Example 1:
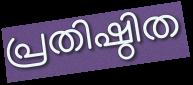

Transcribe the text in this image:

പ്രതിഷ്ഠിത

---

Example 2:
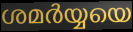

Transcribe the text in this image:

ശമർയ്യയെ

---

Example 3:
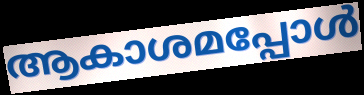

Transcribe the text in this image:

ആകാശമപ്പോൾ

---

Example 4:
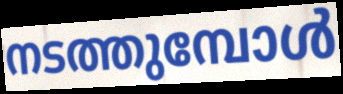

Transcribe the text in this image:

നടത്തുമ്പോൾ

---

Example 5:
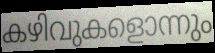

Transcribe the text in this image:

കഴിവുകളൊന്നും